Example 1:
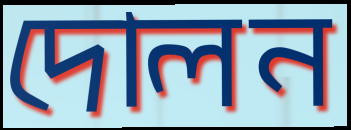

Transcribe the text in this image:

দোলন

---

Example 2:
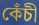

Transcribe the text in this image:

কেঁচী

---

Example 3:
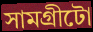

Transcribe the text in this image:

সামগ্ৰীটো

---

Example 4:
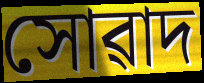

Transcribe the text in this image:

সোৱাদ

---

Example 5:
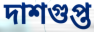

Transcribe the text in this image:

দাশগুপ্ত